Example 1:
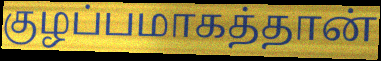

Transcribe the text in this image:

குழப்பமாகத்தான்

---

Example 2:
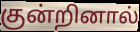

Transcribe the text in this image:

குன்றினால்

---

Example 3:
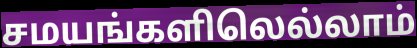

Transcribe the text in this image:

சமயங்களிலெல்லாம்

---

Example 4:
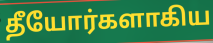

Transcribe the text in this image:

தீயோர்களாகிய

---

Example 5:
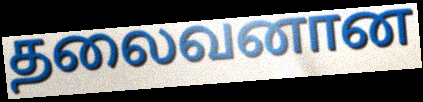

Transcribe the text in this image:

தலைவனான